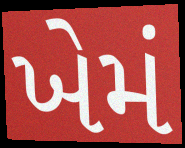
ખેમં